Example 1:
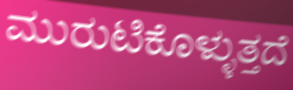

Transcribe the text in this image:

ಮುರುಟಿಕೊಳ್ಳುತ್ತದೆ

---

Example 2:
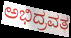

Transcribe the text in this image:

ಅಭಿದ್ರವತ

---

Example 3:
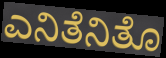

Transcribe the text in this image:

ಎನಿತೆನಿತೊ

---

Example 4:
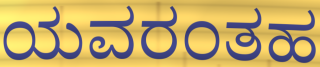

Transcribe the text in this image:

ಯವರಂತಹ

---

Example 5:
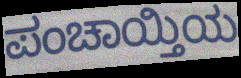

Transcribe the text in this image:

ಪಂಚಾಯ್ತಿಯ